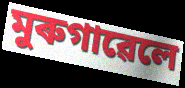
মুৰুগাৱেলে